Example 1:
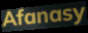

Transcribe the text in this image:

Afanasy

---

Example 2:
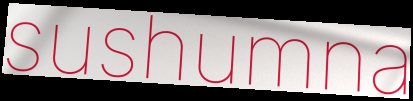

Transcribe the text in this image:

sushumna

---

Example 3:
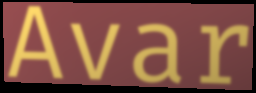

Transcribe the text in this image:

Avar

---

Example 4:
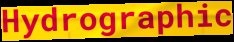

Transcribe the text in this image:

Hydrographic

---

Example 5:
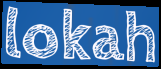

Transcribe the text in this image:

lokah